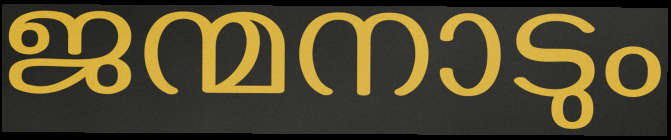
ജന്മനാടും